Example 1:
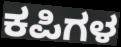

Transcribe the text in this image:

ಕಪಿಗಳ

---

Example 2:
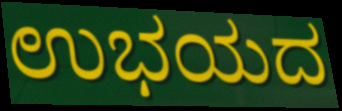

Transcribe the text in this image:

ಉಭಯದ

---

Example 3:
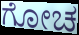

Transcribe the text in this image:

ಗೋಚ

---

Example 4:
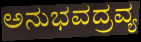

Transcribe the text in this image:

ಅನುಭವದ್ರವ್ಯ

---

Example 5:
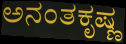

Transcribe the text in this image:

ಅನಂತಕೃಷ್ಣ